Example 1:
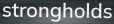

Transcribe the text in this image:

strongholds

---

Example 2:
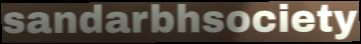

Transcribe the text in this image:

sandarbhsociety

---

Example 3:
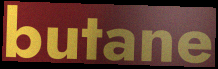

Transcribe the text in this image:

butane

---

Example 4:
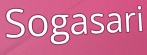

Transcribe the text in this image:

Sogasari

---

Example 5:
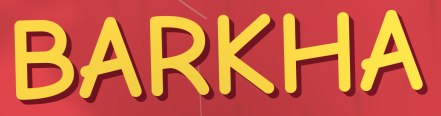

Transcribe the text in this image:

BARKHA